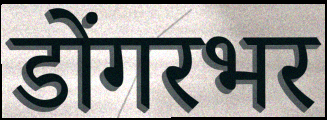
डोंगरभर